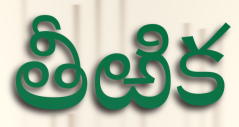
తీఱిక